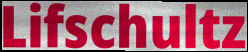
Lifschultz